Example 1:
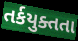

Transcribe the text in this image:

તર્કયુક્તતા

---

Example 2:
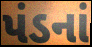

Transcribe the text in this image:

પંડનાં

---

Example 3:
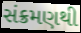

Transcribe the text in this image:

સંક્રમણથી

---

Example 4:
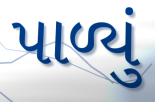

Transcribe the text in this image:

પાળ્યું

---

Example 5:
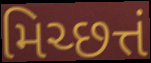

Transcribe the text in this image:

મિચ્છત્તં